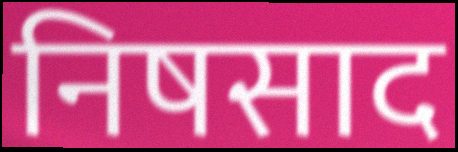
निषसाद